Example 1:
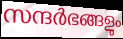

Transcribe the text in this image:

സന്ദർഭങ്ങളും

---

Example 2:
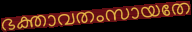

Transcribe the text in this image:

ഭക്താവതംസായതേ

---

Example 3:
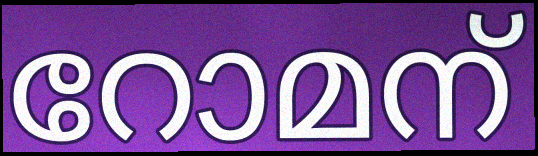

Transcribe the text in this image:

റോമന്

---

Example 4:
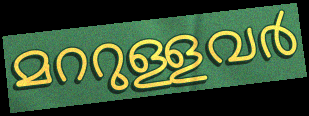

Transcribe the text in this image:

മററുള്ളവർ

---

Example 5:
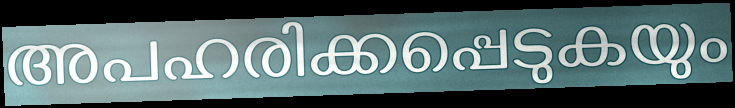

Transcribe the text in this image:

അപഹരിക്കപ്പെടുകയും